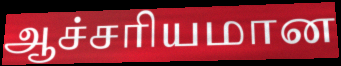
ஆச்சரியமான